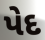
પેદ